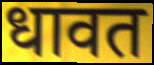
धावत